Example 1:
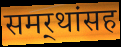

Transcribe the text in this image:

समर्थांसह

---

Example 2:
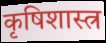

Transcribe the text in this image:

कृषिशास्त्र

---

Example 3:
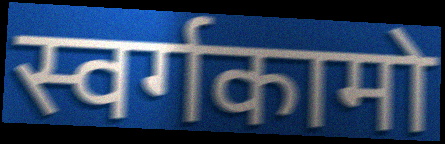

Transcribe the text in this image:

स्वर्गकामो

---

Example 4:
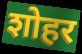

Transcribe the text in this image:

शोहर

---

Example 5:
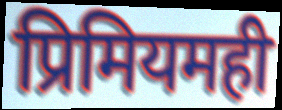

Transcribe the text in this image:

प्रिमियमही